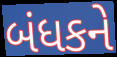
બંધકને